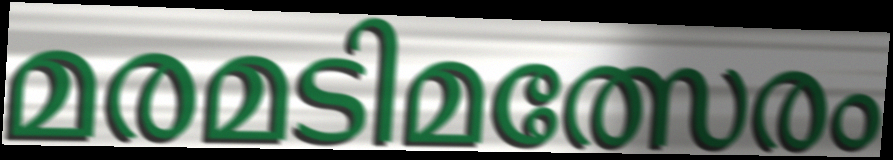
മരമടിമത്സേരം